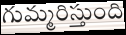
గుమ్మరిస్తుంది